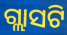
ଗ୍ଲାସଟି